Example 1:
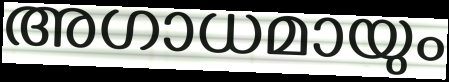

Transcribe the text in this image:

അഗാധമായും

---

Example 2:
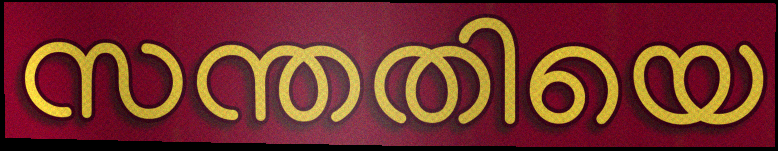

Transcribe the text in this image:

സന്തതിയെ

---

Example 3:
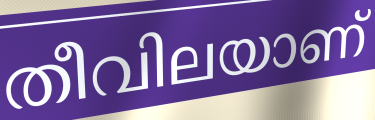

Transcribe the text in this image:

തീവിലയാണ്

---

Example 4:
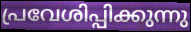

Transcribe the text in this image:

പ്രവേശിപ്പിക്കുന്നു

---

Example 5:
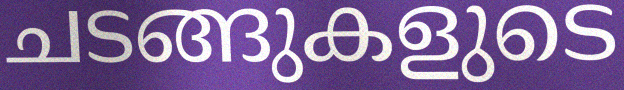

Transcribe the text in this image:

ചടങ്ങുകളുടെ